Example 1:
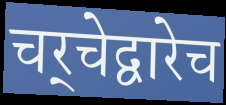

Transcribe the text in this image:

चर्चेद्वारेच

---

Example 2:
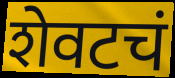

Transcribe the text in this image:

शेवटचं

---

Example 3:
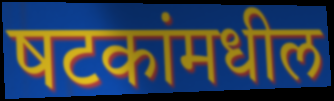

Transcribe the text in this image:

षटकांमधील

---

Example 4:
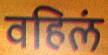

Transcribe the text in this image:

वहिलं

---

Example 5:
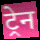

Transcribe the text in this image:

ट्रेन